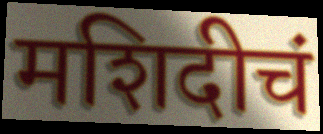
मशिदीचं